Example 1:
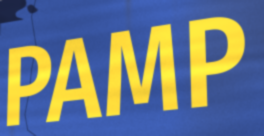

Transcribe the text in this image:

PAMP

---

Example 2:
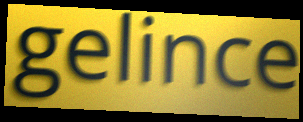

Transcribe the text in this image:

gelince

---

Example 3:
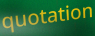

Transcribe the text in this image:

quotation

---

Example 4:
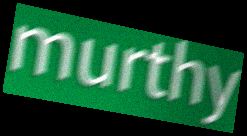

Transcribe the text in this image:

murthy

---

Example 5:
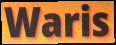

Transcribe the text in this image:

Waris